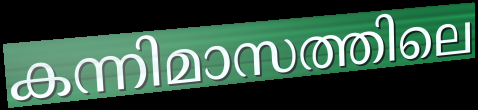
കന്നിമാസത്തിലെ